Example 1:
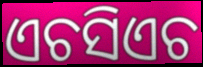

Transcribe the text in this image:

ଏଚସିଏଚ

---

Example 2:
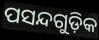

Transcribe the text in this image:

ପସନ୍ଦଗୁଡ଼ିକ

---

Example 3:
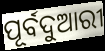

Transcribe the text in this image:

ପୂର୍ବଦୁଆରୀ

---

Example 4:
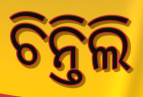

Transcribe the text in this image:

ଚିନ୍ତିଲି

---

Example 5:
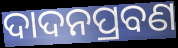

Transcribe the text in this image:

ଦାଦନପ୍ରବଣ